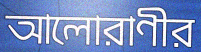
আলোরাণীর